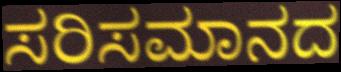
ಸರಿಸಮಾನದ